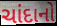
ચાંદાનો